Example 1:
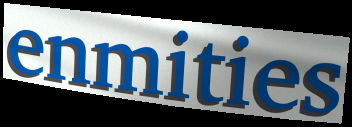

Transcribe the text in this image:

enmities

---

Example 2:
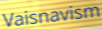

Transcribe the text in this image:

Vaisnavism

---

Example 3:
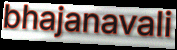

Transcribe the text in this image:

bhajanavali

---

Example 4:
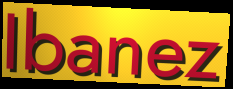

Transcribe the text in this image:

Ibanez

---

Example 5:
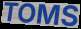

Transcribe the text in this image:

TOMS